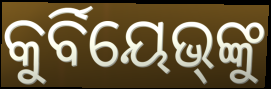
କୁର୍ବିୟେଭ୍‌ଙ୍କୁ